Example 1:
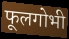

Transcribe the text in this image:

फूलगोभी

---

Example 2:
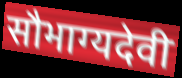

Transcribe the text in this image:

सौभाग्यदेवी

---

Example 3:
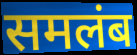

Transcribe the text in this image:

समलंब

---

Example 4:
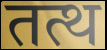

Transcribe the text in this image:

तत्थ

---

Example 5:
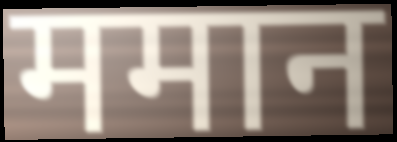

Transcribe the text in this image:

ममान